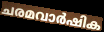
ചരമവാർഷിക